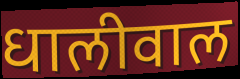
धालीवाल